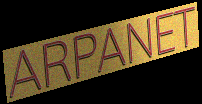
ARPANET